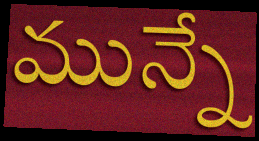
మున్నే